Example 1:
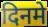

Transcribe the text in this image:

दिनमे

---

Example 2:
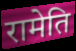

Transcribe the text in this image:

रामेति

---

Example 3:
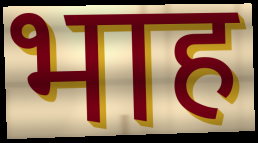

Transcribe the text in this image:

भाह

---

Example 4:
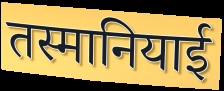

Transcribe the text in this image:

तस्मानियाई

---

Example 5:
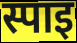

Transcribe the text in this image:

स्पाइ